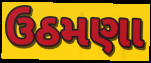
ઉઠમણા